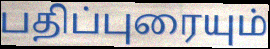
பதிப்புரையும்